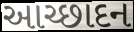
આચ્છાદન